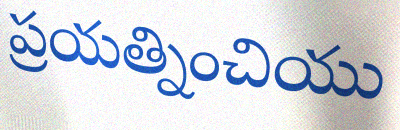
ప్రయత్నించియు